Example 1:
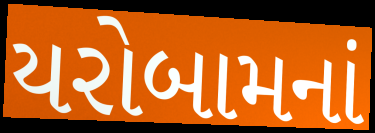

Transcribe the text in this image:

યરોબામનાં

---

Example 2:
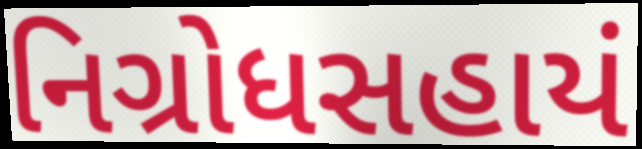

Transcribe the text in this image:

નિગ્રોધસહાયં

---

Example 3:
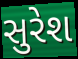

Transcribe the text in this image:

સુરેશ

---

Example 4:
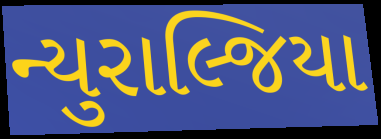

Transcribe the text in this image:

ન્યુરાલ્જિયા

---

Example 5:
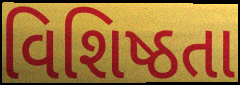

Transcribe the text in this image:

વિશિષ્ઠતા